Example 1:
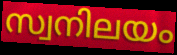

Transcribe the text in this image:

സ്വനിലയം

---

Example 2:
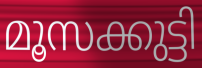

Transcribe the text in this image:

മൂസക്കുട്ടി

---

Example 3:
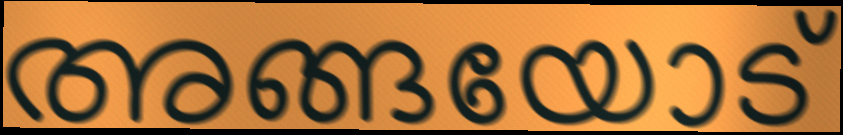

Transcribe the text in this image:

അങ്ങയോട്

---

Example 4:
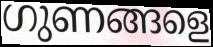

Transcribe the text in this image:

ഗുണങ്ങളെ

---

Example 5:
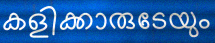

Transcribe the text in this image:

കളിക്കാരുടേയും